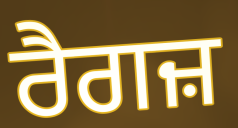
ਰੈਗਜ਼